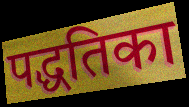
पद्धतिका